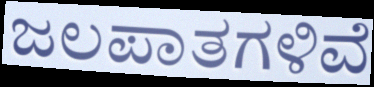
ಜಲಪಾತಗಳಿವೆ